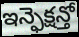
ఇన్ఫెక్షన్తో